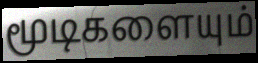
மூடிகளையும்